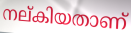
നല്കിയതാണ്